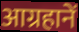
आग्रहानें